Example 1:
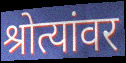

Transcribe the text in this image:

श्रोत्यांवर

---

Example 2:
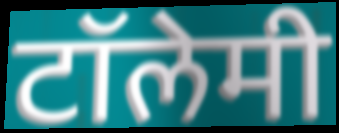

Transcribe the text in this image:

टॉलेमी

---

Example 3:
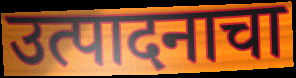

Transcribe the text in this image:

उत्पादनाचा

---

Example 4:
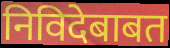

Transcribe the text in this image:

निविदेबाबत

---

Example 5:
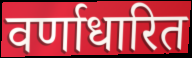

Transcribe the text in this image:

वर्णाधारित